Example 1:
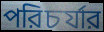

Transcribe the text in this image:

পরিচর্যার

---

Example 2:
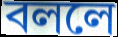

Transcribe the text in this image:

বললে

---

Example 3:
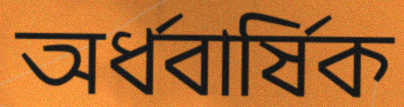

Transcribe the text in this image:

অর্ধবার্ষিক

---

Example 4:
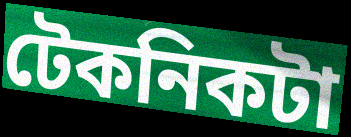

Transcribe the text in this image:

টেকনিকটা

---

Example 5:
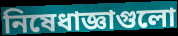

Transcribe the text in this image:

নিষেধাজ্ঞাগুলো